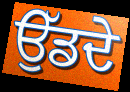
ਉੱਡਦੇ